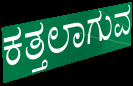
ಕತ್ತಲಾಗುವ